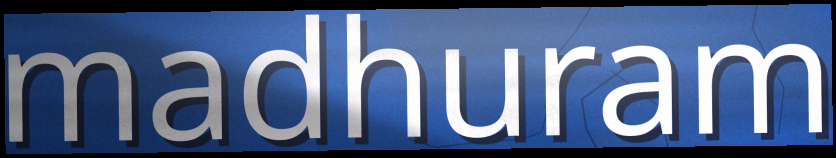
madhuram